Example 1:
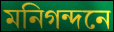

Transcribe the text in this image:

মনিগন্দনে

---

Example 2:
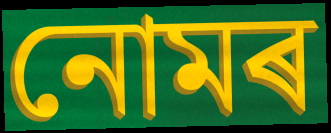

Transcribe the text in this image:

নোমৰ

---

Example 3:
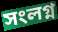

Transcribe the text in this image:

সংলগ্ন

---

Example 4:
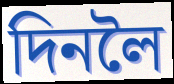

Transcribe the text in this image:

দিনলৈ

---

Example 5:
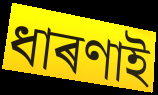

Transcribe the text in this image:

ধাৰণাই